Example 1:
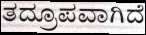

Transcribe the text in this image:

ತದ್ರೂಪವಾಗಿದೆ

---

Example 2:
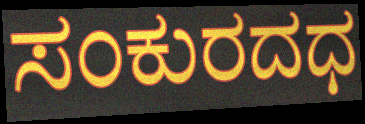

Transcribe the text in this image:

ಸಂಕುರದಧ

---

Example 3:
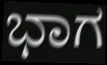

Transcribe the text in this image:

ಭಾಗ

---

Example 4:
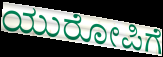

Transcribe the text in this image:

ಯುರೋಪಿಗೆ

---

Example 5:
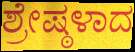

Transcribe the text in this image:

ಶ್ರೇಷ್ಠಳಾದ